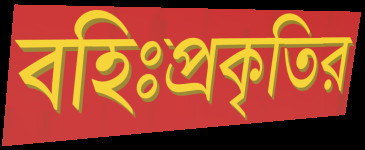
বহিঃপ্রকৃতির